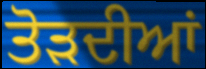
ਤੋੜਦੀਆਂ